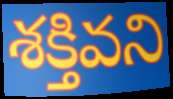
శక్తివని